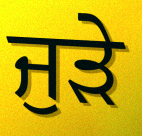
ਜੁੜੇ